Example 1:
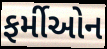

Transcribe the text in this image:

ફર્મીઓન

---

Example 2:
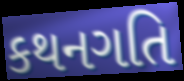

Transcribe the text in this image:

કથનગતિ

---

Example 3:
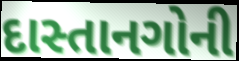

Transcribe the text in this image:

દાસ્તાનગોની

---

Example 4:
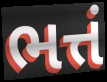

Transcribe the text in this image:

ભત્તં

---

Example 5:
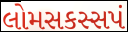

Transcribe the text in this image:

લોમસકસ્સપં